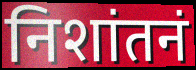
निशांतनं